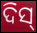
ଦିସ୍